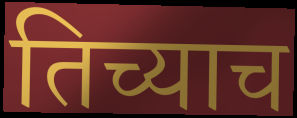
तिच्याच